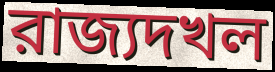
রাজ্যদখল